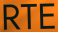
RTE